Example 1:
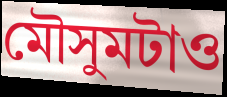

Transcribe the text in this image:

মৌসুমটাও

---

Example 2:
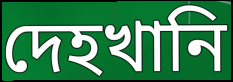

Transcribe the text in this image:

দেহখানি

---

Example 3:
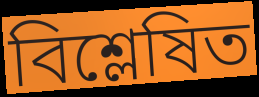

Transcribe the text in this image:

বিশ্লেষিত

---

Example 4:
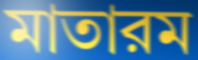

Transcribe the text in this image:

মাতারম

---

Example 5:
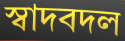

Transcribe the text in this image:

স্বাদবদল